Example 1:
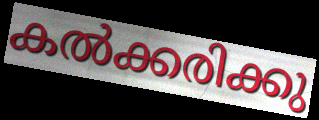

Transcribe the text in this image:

കൽക്കരിക്കു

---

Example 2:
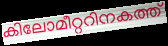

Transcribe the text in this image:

കിലോമീറ്ററിനകത്ത്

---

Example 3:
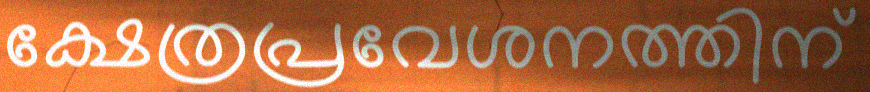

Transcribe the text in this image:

ക്ഷേത്രപ്രവേശനത്തിന്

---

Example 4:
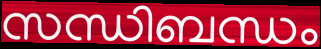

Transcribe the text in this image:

സന്ധിബന്ധം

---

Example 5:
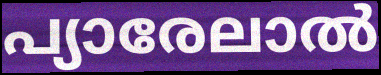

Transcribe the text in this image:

പ്യാരേലാൽ